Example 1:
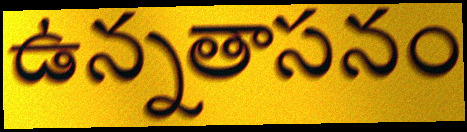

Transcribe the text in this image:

ఉన్నతాసనం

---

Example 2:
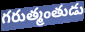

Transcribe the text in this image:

గరుత్మంతుడు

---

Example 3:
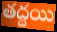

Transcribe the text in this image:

తద్దయి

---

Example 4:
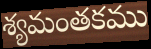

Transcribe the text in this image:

శ్యమంతకము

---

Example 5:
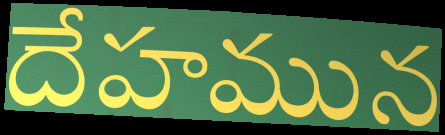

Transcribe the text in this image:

దేహమున